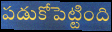
పడుకోపెట్టింది